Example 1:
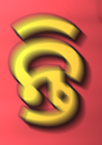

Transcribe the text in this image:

ନ୍ତି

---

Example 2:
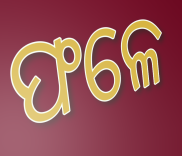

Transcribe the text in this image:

ଫଳେ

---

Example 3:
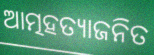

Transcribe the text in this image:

ଆତ୍ମହତ୍ୟାଜନିତ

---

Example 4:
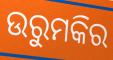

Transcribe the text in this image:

ଉରୁମକିର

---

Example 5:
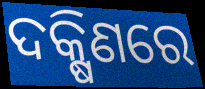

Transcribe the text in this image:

ଦକ୍ଷିଣରେ